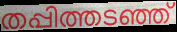
തപ്പിത്തടഞ്ഞ്